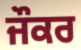
ਜੌਕਰ